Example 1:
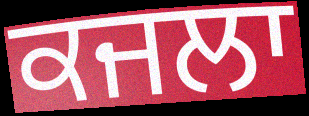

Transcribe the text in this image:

ਕਜਲਾ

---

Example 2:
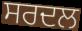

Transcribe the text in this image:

ਸਰਦਲ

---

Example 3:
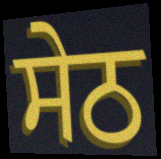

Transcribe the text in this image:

ਸੇਠ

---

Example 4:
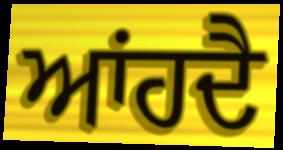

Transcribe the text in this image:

ਆਂਹਦੈ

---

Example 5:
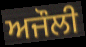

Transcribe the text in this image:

ਅਜੌਲੀ